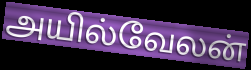
அயில்வேலன்